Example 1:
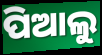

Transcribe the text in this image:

ପିଆଲୁ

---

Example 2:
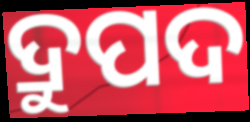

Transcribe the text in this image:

ଦ୍ରୁପଦ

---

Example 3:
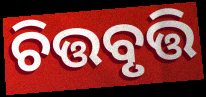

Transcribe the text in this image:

ଚିତ୍ତବୃତ୍ତି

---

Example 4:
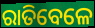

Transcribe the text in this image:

ରାତିବେଳେ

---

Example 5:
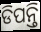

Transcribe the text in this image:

ଡିପନ୍ତି